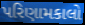
પરિણામકાલો